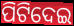
ପିଟିଦେଇ